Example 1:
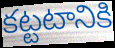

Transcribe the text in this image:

కట్టటానికి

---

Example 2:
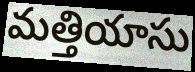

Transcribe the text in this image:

మత్తియాసు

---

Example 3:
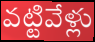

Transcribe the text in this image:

వట్టివేళ్లు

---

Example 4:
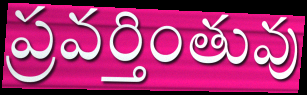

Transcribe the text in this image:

ప్రవర్తింతువు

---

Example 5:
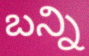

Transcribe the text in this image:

బన్ని